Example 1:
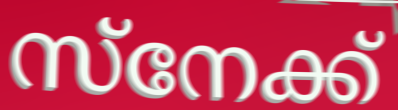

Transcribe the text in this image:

സ്നേക്ക്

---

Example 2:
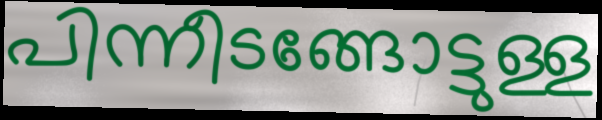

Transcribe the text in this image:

പിന്നീടങ്ങോട്ടുള്ള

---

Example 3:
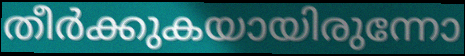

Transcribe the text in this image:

തീർക്കുകയായിരുന്നോ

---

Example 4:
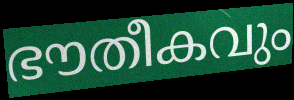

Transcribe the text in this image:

ഭൗതീകവും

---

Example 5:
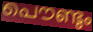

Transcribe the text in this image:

പൌണ്ടും